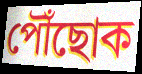
পৌঁছোক